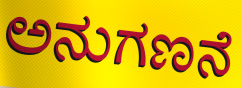
ಅನುಗಣನೆ